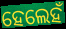
ହେଲେହଁ